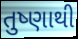
તુષ્ણાથી